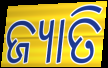
ଜ୍ୟାତି